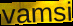
vamsi